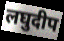
लघुदीप